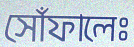
সোঁফালেঃ